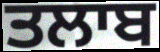
ਤਲਾਬ